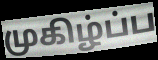
முகிழ்ப்ப